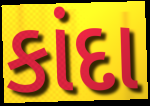
કાંદા